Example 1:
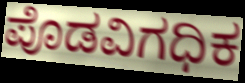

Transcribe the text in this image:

ಪೊಡವಿಗಧಿಕ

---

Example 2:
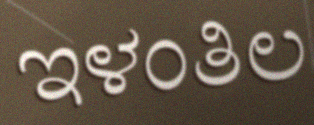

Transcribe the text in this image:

ಇಳಂತಿಲ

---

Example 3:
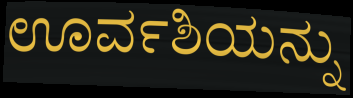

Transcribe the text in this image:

ಊರ್ವಶಿಯನ್ನು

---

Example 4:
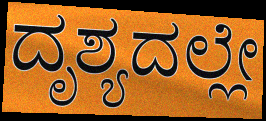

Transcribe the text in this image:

ದೃಶ್ಯದಲ್ಲೇ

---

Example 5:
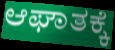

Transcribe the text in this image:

ಆಘಾತಕ್ಕೆ